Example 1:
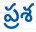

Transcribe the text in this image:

ప్రశ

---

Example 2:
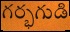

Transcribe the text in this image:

గర్భగుడి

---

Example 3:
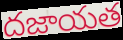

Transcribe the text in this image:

దజాయత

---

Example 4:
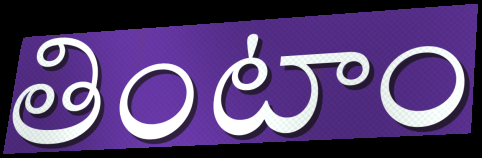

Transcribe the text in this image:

తింటాం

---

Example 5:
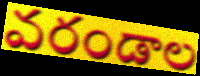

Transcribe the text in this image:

వరండాల